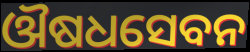
ଔଷଧସେବନ